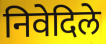
निवेदिले